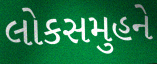
લોકસમુહને